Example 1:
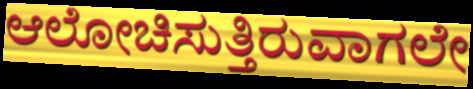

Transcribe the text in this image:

ಆಲೋಚಿಸುತ್ತಿರುವಾಗಲೇ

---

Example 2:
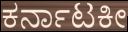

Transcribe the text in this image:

ಕರ್ನಾಟಕೀ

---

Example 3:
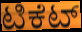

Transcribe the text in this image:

ಟಿಕೆಟ್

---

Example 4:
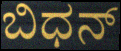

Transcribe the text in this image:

ಬಿಧನ್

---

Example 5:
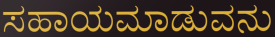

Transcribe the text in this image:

ಸಹಾಯಮಾಡುವನು